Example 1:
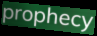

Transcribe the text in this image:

prophecy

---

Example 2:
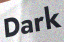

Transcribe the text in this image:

Dark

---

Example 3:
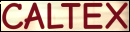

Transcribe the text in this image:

CALTEX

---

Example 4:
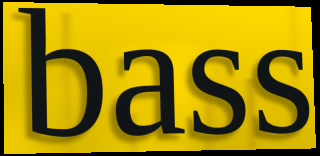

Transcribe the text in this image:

bass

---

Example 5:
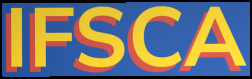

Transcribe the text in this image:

IFSCA